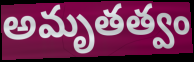
అమృతత్వం